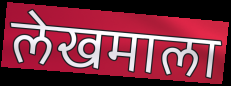
लेखमाला